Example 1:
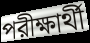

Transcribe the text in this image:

পরীক্ষার্থী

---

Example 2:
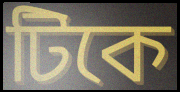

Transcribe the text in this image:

টিকে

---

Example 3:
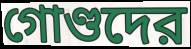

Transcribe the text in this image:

গোণ্ডদের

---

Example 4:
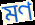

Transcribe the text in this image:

মণ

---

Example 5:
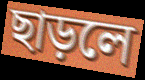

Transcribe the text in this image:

ছাড়লে